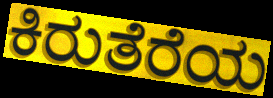
ಕಿರುತೆರೆಯ